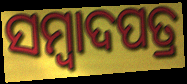
ସମ୍ବାଦପତ୍ର